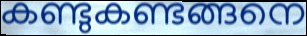
കണ്ടുകണ്ടങ്ങനെ